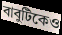
বাবুটিকেও